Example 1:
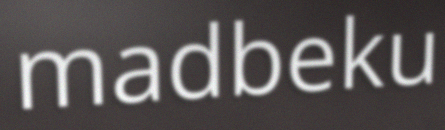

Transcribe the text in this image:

madbeku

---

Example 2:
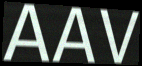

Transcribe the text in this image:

AAV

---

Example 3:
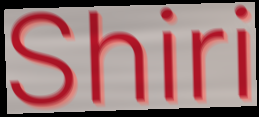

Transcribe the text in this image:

Shiri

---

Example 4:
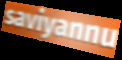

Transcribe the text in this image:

saviyannu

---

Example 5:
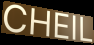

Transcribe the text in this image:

CHEIL